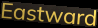
Eastward